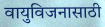
वायुविजनासाठी